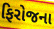
ફિરોજના